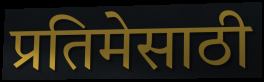
प्रतिमेसाठी